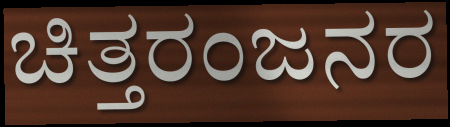
ಚಿತ್ತರಂಜನರ